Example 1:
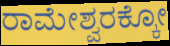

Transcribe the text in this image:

ರಾಮೇಶ್ವರಕ್ಕೋ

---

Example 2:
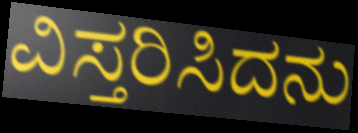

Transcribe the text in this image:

ವಿಸ್ತರಿಸಿದನು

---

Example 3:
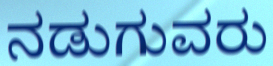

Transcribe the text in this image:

ನಡುಗುವರು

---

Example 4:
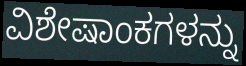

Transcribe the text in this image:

ವಿಶೇಷಾಂಕಗಳನ್ನು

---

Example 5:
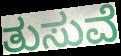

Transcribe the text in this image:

ತುಸುವೆ